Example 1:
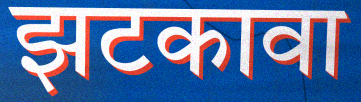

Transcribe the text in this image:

झटकावा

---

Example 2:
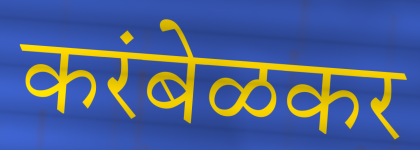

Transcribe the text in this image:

करंबेळकर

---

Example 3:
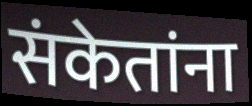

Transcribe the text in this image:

संकेतांना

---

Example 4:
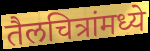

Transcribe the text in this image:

तैलचित्रांमध्ये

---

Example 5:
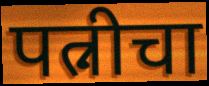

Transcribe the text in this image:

पत्नीचा